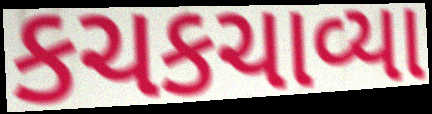
કચકચાવ્યા